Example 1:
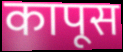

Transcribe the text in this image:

कापूस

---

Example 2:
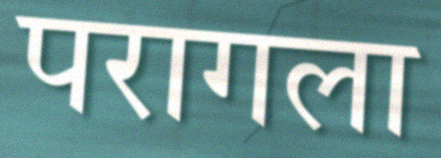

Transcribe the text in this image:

परागला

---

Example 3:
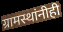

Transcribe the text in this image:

ग्रामस्थांनीही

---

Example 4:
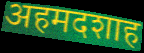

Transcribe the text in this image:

अहमदशाह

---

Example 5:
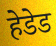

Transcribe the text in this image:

हेडेड